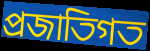
প্রজাতিগত